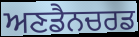
ਅਣਡੈਨਚਰਡ